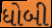
ધોબી